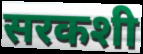
सरकशी